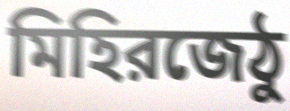
মিহিরজেঠু